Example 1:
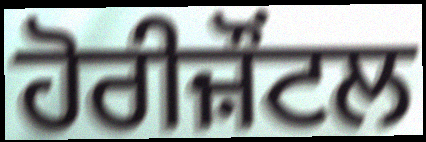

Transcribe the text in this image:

ਹੋਰੀਜ਼ੌਂਟਲ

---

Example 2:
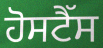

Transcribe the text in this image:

ਹੋਸਟੈੱਸ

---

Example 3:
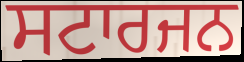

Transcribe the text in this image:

ਸਟਾਰਜਨ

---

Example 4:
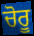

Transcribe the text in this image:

ਚੋਰੂ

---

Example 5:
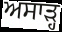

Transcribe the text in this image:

ਅਸਾੜ੍ਹ